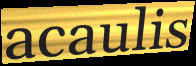
acaulis